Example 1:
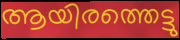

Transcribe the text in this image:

ആയിരത്തെട്ടു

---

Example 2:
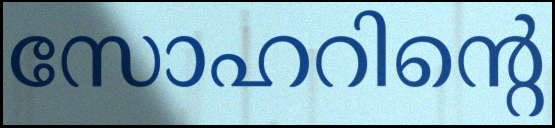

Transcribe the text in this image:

സോഹറിന്റെ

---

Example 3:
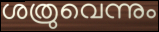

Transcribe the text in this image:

ശത്രുവെന്നും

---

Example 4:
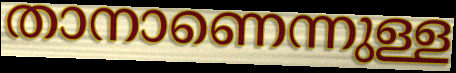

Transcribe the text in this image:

താനാണെന്നുള്ള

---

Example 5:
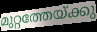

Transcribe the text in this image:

മുറ്റത്തേയ്ക്കു